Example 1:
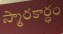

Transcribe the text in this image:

స్మారకార్ధం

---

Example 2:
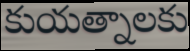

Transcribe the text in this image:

కుయత్నాలకు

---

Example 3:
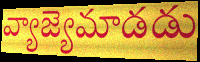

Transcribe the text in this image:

వ్యాజ్యెమాడడు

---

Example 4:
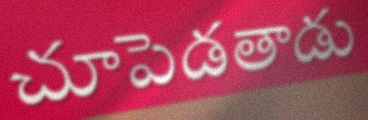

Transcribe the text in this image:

చూపెడతాడు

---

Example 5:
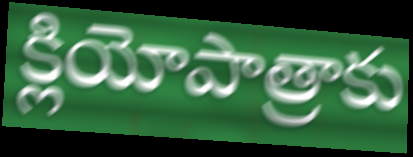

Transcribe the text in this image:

క్లియోపాత్రాకు